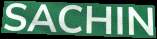
SACHIN